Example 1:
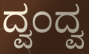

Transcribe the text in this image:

ದ್ವಂದ್ವ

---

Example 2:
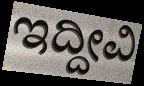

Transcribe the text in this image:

ಇದ್ದೀವಿ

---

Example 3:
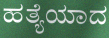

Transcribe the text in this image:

ಹತ್ಯೆಯಾದ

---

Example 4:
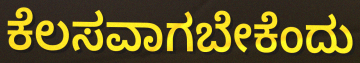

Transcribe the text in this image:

ಕೆಲಸವಾಗಬೇಕೆಂದು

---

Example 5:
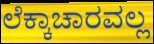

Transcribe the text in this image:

ಲೆಕ್ಕಾಚಾರವಲ್ಲ